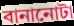
বানানোটা